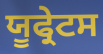
ਯੂਫ੍ਰੇਟਸ